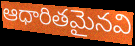
ఆధారితమైనవి